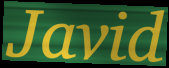
Javid